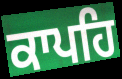
ਕਾਪਹਿ